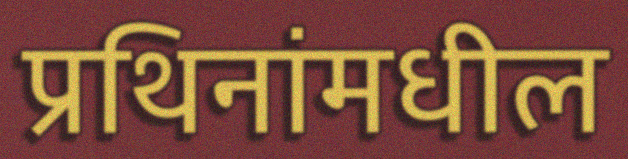
प्रथिनांमधील